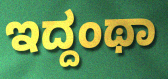
ಇದ್ದಂಥಾ